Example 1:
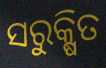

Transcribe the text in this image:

ସରୁକ୍ଷିତ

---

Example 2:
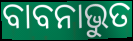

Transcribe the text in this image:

ବାବନାଭୁତ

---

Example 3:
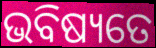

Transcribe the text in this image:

ଭବିଷ୍ୟତେ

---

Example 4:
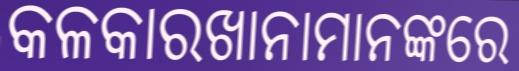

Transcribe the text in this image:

କଳକାରଖାନାମାନଙ୍କରେ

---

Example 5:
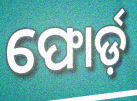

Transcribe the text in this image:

ଫୋର୍ଡ଼